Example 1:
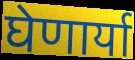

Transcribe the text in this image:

घेणार्या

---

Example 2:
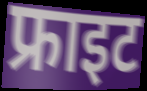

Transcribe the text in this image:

फ्राइट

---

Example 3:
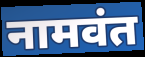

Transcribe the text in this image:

नामवंत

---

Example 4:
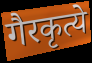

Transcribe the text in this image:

गैरकृत्ये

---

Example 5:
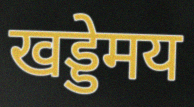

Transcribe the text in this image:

खड्डेमय